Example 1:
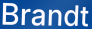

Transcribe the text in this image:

Brandt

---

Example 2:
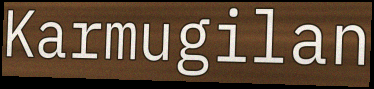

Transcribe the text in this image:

Karmugilan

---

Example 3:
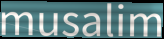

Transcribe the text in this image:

musalim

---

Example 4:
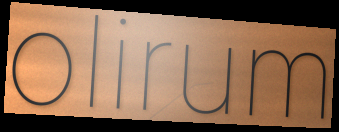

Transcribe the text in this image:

olirum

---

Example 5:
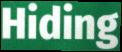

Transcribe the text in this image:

Hiding